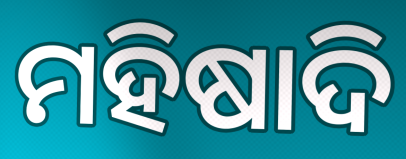
ମହିଷାଦି